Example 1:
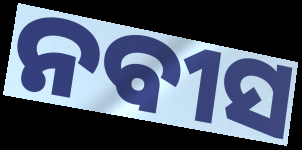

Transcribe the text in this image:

ନବୀସ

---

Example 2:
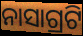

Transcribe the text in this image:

ନାସାଗ୍ରଟି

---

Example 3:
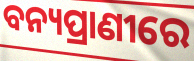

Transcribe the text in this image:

ବନ୍ୟପ୍ରାଣୀରେ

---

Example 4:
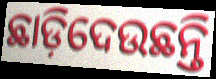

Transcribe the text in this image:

ଛାଡ଼ିଦେଉଛନ୍ତି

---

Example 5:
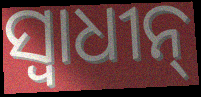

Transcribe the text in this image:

ସ୍ଵାଧୀନ୍